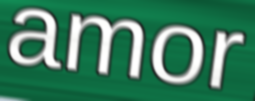
amor